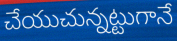
చేయుచున్నట్టుగానే